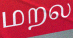
மறல